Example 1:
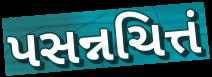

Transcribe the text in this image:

પસન્નચિત્તં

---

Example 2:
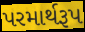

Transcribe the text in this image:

પરમાર્થરૂપ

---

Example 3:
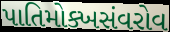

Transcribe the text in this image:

પાતિમોક્ખસંવરોવ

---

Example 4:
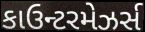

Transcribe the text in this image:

કાઉન્ટરમેઝર્સ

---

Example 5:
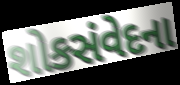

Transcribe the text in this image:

શોકસંવેદના